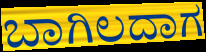
ಬಾಗಿಲದಾಗ